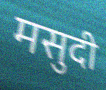
मसुदी